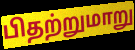
பிதற்றுமாறு